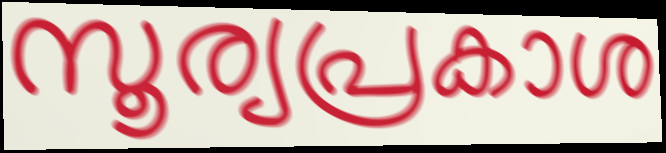
സൂര്യപ്രകാശ